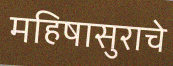
महिषासुराचे